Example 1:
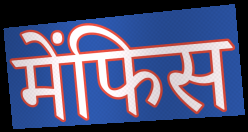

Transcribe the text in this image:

मेंफिस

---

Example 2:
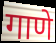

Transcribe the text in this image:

गाणे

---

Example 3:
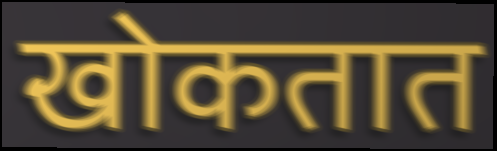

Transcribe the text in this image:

खोकतात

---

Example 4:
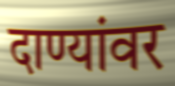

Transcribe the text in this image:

दाण्यांवर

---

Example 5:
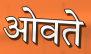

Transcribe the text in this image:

ओवते